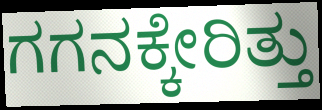
ಗಗನಕ್ಕೇರಿತ್ತು